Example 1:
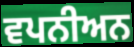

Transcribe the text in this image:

ਵਪਨੀਅਨ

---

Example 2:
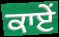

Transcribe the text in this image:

ਕਾਏਂ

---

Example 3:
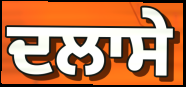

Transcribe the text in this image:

ਦਲਾਸੇ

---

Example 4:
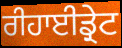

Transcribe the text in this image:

ਰੀਹਾਈਡ੍ਰੇਟ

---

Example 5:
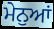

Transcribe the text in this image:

ਮੇਨੁਆਂ